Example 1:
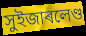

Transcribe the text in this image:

সুইজাৰলেণ্ড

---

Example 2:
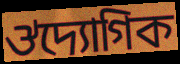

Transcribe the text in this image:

ঔদ্যোগিক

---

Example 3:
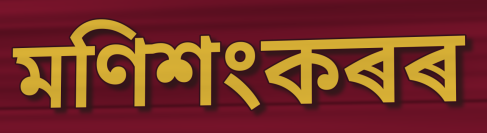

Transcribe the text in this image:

মণিশংকৰৰ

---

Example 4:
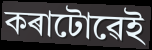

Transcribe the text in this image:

কৰাটোৱেই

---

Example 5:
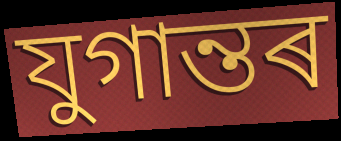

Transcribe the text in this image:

যুগান্তৰ